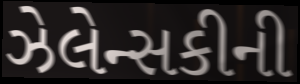
ઝેલેન્સકીની